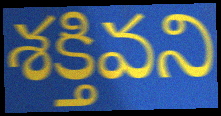
శక్తివని